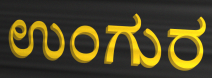
ಉಂಗುರ